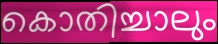
കൊതിച്ചാലും